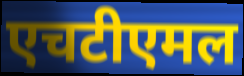
एचटीएमल